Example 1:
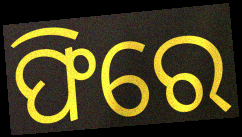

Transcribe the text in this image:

ଫିରେ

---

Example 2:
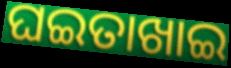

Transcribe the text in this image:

ଘଇତାଖାଇ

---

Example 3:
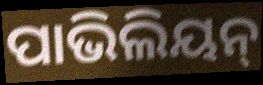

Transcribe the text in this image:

ପାଭିଲିୟନ୍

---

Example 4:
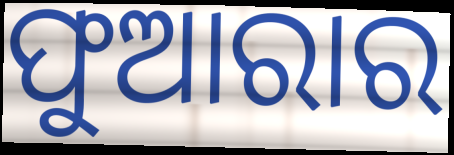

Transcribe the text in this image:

ଫୁଆରାର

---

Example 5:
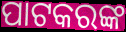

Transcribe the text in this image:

ପାଟକରଙ୍କ